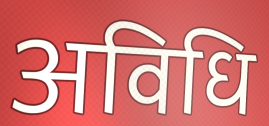
अविधि